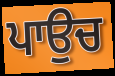
ਪਾਉਚ